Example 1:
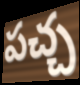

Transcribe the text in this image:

పచ్చ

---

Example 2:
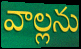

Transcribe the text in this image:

వాల్లను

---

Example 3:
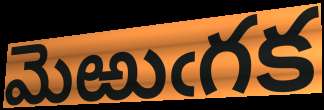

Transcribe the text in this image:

మెఱుఁగక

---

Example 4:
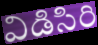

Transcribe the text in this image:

విడిసిరి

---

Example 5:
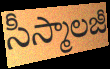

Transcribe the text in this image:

సీస్మాలజీ